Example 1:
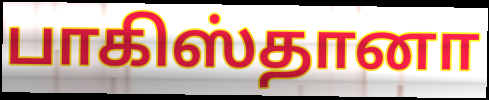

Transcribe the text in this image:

பாகிஸ்தானா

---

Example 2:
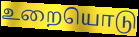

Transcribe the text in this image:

உறையொடு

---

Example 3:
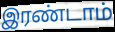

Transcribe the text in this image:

இரண்டாம்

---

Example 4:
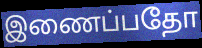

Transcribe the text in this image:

இணைப்பதோ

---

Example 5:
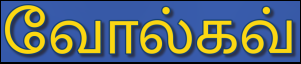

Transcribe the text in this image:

வோல்கவ்